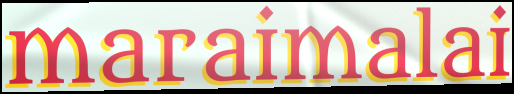
maraimalai